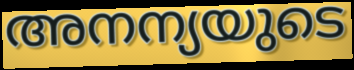
അനന്യയുടെ